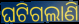
ଘଟିଗଲାଣି